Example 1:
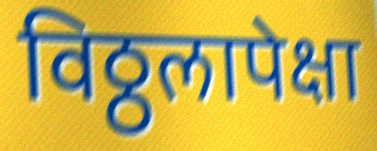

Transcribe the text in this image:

विठ्ठलापेक्षा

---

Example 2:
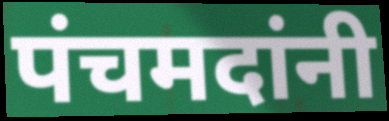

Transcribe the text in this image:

पंचमदांनी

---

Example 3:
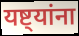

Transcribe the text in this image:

यष्ट्यांना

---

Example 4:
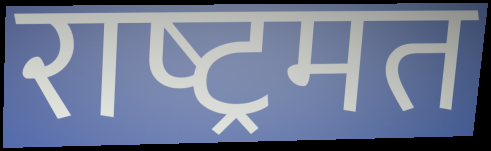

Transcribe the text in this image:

राष्ट्रमत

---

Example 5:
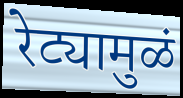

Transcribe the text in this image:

रेट्यामुळं